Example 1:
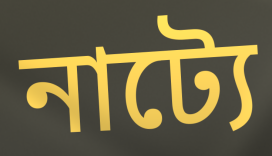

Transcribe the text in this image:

নাট্যে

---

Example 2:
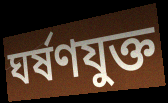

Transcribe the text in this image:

ঘর্ষণযুক্ত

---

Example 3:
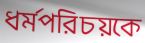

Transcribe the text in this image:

ধর্মপরিচয়কে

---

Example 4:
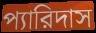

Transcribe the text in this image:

প্যারিদাস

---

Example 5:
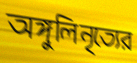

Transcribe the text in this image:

অঙ্গুলিনৃত্যের